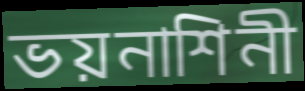
ভয়নাশিনী